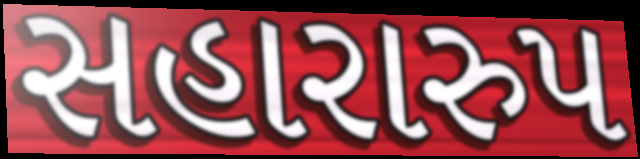
સહારારુપ